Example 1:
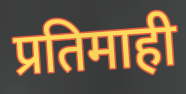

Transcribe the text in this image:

प्रतिमाही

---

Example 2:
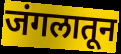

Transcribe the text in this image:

जंगलातून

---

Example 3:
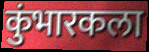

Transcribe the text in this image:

कुंभारकला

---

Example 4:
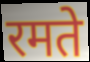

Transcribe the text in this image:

रमते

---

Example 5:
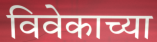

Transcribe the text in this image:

विवेकाच्या